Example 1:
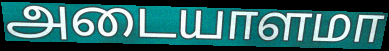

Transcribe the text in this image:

அடையாளமா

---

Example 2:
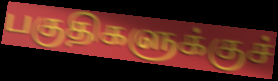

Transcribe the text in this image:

பகுதிகளுக்குச்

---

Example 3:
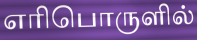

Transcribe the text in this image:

எரிபொருளில்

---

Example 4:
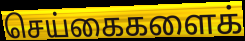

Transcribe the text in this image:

செய்கைகளைக்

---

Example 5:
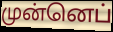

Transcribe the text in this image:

முன்னெப்